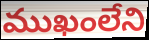
ముఖంలేని